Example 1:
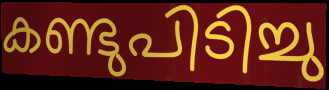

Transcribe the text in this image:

കണ്ടുപിടിച്ചു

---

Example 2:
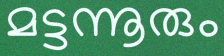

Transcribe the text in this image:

മട്ടന്നൂരും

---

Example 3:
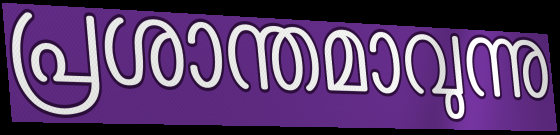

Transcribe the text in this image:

പ്രശാന്തമാവുന്നു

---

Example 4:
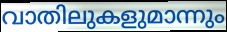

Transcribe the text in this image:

വാതിലുകളുമാന്നും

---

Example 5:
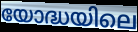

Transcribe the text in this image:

യോദ്ധയിലെ